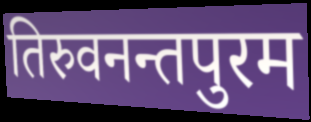
तिरुवनन्तपुरम